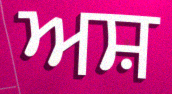
ਅਸ਼